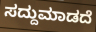
ಸದ್ದುಮಾಡದೆ